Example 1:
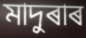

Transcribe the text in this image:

মাদুৰাৰ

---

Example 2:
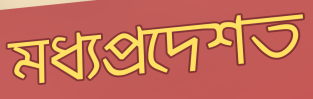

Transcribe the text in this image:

মধ্যপ্ৰদেশত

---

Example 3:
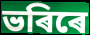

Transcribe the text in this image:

ভৰিৰে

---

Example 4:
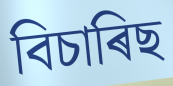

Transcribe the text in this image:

বিচাৰিছ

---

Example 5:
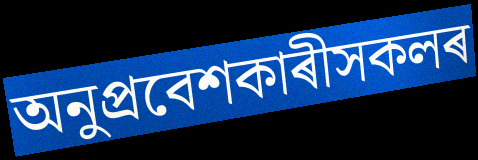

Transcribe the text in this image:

অনুপ্ৰবেশকাৰীসকলৰ